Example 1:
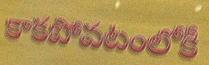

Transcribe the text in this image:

కాకపోవటంలోకీ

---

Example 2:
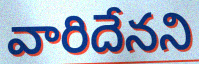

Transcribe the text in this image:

వారిదేనని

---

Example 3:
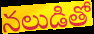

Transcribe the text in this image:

నలుడితో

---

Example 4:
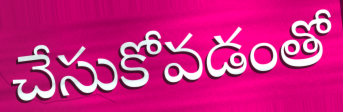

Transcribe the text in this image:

చేసుకోవడంతో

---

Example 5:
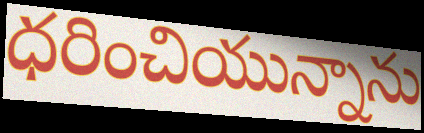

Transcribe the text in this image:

ధరించియున్నాను